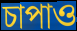
চাপাও